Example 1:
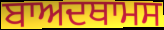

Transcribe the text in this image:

ਬਾਅਦਥਾਮਸ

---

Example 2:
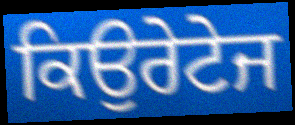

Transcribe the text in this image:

ਕਿਉਰੇਟੇਜ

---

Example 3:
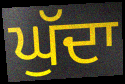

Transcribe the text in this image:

ਘੁੱਦਾ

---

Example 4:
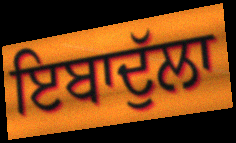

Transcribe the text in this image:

ਇਬਾਦੁੱਲਾ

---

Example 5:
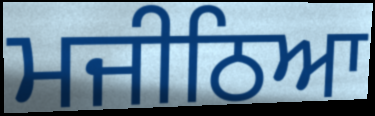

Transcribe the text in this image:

ਮਜੀਠਿਆ